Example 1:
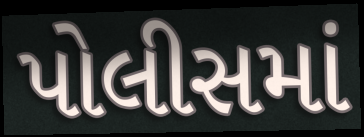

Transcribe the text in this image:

પોલીસમાં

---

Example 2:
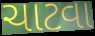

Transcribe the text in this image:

ચાટવા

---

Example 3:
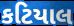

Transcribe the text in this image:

કટિયાલ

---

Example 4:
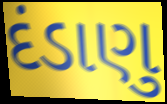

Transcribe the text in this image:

દંડાણુ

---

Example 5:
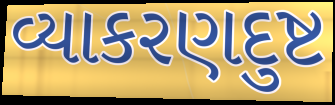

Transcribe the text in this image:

વ્યાકરણદુષ્ટ